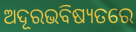
ଅଦୂରଭବିଷ୍ୟତରେ